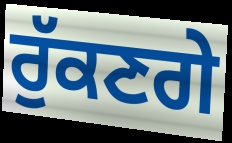
ਰੁੱਕਣਗੇ